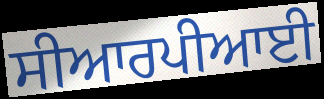
ਸੀਆਰਪੀਆਈ